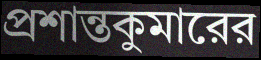
প্রশান্তকুমারের